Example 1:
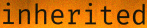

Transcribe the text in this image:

inherited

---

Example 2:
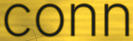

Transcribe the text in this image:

conn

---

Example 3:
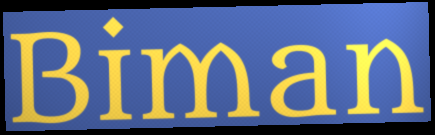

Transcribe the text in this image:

Biman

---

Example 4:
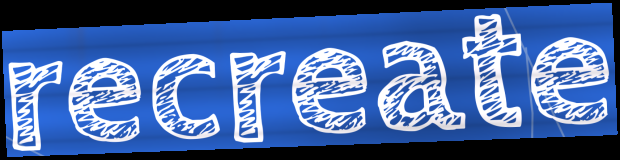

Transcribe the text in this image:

recreate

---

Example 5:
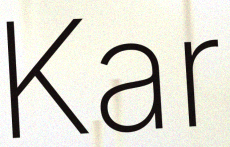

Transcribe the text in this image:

Kar